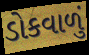
ડોકવાળું